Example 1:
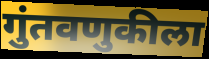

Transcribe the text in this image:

गुंतवणुकीला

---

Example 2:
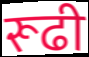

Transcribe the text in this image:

रूढी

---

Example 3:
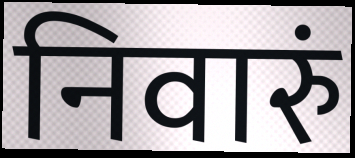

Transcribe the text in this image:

निवारुं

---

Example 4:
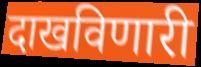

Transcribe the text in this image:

दाखविणारी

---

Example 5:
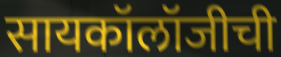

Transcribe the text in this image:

सायकॉलॉजीची